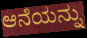
ಆನೆಯನ್ನು